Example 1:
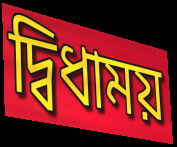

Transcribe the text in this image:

দ্বিধাময়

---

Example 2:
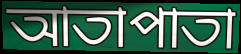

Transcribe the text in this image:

আতাপাতা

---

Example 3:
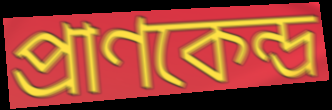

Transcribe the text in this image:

প্রাণকেন্দ্র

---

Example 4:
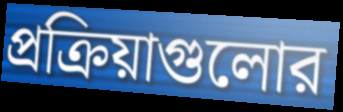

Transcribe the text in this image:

প্রক্রিয়াগুলোর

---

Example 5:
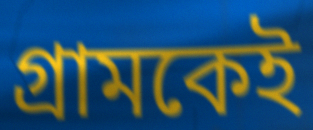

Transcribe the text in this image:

গ্রামকেই